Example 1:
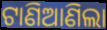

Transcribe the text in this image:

ଟାଣିଆଣିଲା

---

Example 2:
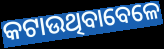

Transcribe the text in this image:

କଟାଉଥିବାବେଳେ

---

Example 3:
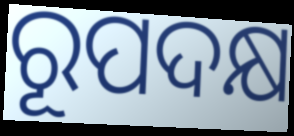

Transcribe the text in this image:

ରୂପଦକ୍ଷ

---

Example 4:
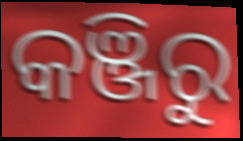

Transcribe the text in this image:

କଞ୍ଜିରୁ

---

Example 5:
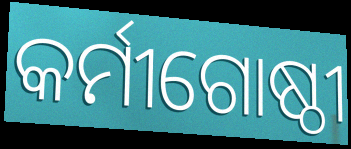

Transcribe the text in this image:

କର୍ମୀଗୋଷ୍ଠୀ